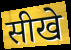
सीखे